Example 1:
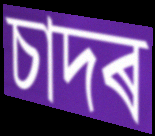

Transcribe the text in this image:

চাদৰ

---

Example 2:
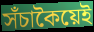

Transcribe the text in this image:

সঁচাকৈয়েই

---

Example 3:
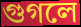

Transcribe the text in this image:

গুগলে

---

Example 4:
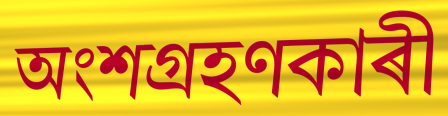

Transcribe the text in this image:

অংশগ্ৰহণকাৰী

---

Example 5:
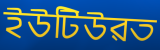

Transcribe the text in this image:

ইউটিউৱত